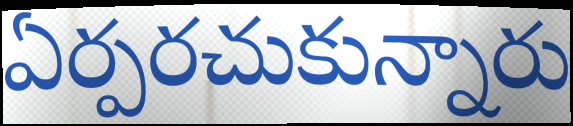
ఏర్పరచుకున్నారు